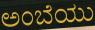
ಅಂಬೆಯು